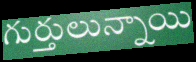
గుర్తులున్నాయి